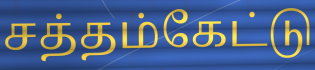
சத்தம்கேட்டு